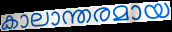
കാലാന്തരമായ